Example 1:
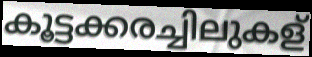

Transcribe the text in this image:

കൂട്ടക്കരച്ചിലുകള്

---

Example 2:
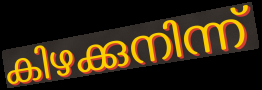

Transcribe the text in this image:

കിഴക്കുനിന്ന്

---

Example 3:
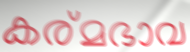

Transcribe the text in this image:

കര്മഭാവ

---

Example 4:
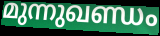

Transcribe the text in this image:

മുന്നുഖണ്ഡം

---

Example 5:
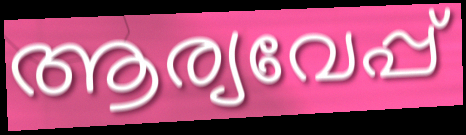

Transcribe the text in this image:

ആര്യവേപ്പ്